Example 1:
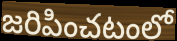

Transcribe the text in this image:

జరిపించటంలో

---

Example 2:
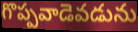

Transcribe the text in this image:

గొప్పవాడెవడును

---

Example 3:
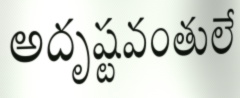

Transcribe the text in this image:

అదృష్టవంతులే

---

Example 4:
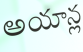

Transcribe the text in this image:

అయాన్ల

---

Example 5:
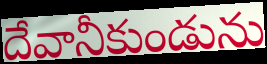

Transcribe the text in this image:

దేవానీకుండును